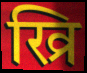
ख्रि